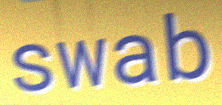
swab